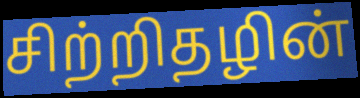
சிற்றிதழின்